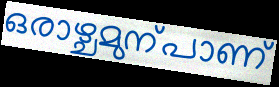
ഒരാഴ്ചമുന്പാണ്